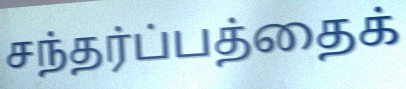
சந்தர்ப்பத்தைக்